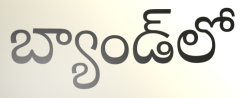
బ్యాండ్‌లో